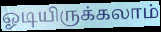
ஓடியிருக்கலாம்